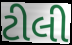
ટીલી